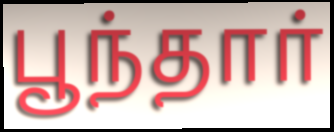
பூந்தார்